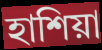
হাশিয়া